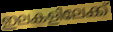
ഇലകളിലേക്ക്